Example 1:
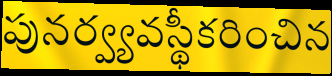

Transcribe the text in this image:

పునర్వ్యవస్థీకరించిన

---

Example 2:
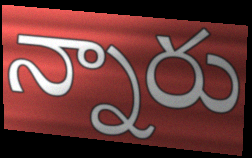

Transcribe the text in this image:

న్నారు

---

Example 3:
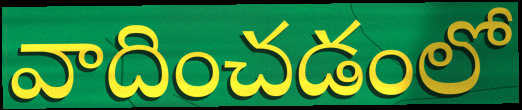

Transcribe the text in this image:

వాదించడంలో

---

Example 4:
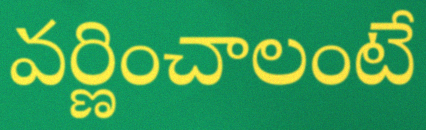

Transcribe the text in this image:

వర్ణించాలంటే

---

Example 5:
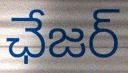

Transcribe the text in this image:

ఛేజర్